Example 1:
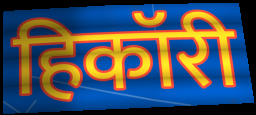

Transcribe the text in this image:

हिकॉरी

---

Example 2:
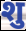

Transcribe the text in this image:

शु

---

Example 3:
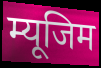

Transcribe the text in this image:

म्यूजिम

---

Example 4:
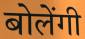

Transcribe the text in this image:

बोलेंगी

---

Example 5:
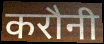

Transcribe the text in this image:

करौनी